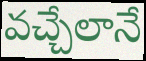
వచ్చేలానే